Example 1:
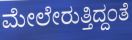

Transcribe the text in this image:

ಮೇಲೇರುತ್ತಿದ್ದಂತೆ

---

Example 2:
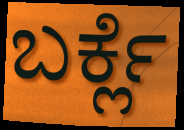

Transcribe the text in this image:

ಬರ್ಕ್ಲೆ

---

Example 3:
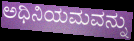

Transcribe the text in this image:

ಅಧಿನಿಯಮವನ್ನು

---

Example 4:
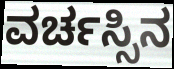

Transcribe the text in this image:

ವರ್ಚಸ್ಸಿನ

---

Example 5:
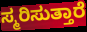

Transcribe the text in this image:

ಸ್ಮರಿಸುತ್ತಾರೆ